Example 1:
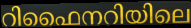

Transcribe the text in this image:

റിഫൈനറിയിലെ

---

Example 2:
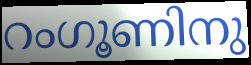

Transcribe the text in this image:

റംഗൂണിനു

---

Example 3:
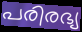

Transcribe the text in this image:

പരിരഭ്യ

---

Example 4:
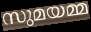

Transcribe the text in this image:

സുമയമ്മ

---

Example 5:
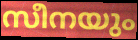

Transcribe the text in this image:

സീനയും